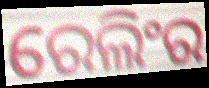
ରେଲିଂର